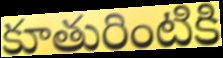
కూతురింటికి